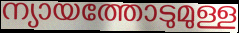
ന്യായത്തോടുമുള്ള